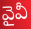
వైవీ